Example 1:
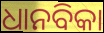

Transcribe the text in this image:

ଧାନବିକା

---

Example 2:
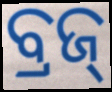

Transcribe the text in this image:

ବ୍ରଜ୍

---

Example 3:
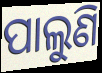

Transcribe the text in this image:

ପାଲୁଣି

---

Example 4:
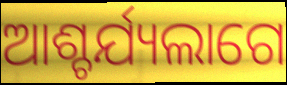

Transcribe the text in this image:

ଆଶ୍ଚର୍ଯ୍ୟଲାଗେ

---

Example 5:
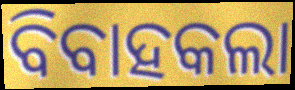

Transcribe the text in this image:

ବିବାହକଲା